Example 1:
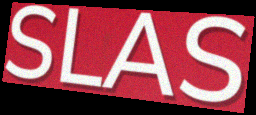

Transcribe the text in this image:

SLAS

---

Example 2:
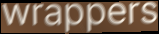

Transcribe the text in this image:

wrappers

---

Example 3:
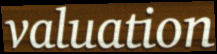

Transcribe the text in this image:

valuation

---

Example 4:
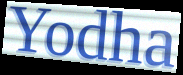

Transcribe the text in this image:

Yodha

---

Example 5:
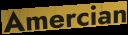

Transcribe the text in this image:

Amercian